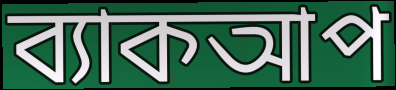
ব্যাকআপ